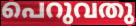
പെറുവതു